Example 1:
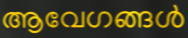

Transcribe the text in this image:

ആവേഗങ്ങൾ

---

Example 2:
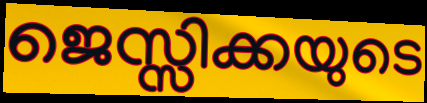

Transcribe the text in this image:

ജെസ്സിക്കയുടെ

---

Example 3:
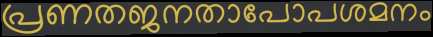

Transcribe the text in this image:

പ്രണതജനതാപോപശമനം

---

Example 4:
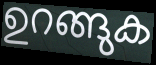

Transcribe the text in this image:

ഉറങ്ങുക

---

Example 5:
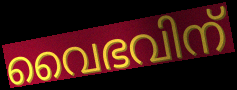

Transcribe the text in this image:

വൈഭവിന്